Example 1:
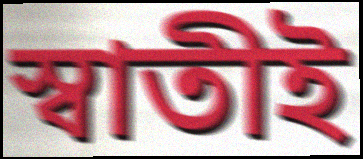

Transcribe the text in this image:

স্বাতীই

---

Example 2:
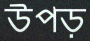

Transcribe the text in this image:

উপড়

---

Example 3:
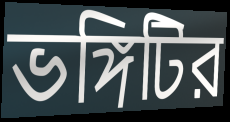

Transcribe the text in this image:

ভঙ্গিটির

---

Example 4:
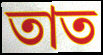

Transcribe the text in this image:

তাত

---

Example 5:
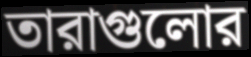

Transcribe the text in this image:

তারাগুলোর